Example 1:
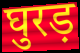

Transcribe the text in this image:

घुरड़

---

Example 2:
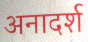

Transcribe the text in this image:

अनादर्श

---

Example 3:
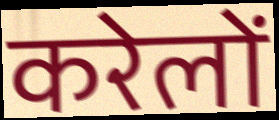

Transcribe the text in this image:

करेलों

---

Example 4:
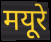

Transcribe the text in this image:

मयूरे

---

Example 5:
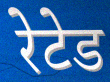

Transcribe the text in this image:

रेटेड